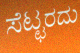
ಸೆಟ್ಟರದು